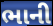
ભાની